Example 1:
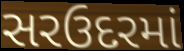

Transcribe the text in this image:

સરઉદરમાં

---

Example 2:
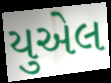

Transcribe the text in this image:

યુએલ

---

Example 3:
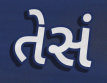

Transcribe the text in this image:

તેસં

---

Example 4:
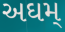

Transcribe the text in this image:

અઘમ્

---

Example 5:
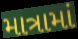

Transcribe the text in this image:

માત્રામાં